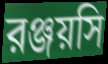
রঞ্জয়সি